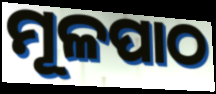
ମୂଳପାଠ